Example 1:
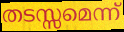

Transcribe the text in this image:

തടസ്സമെന്ന്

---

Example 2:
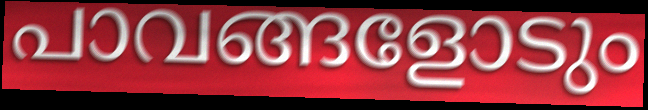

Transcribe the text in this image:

പാവങ്ങളോടും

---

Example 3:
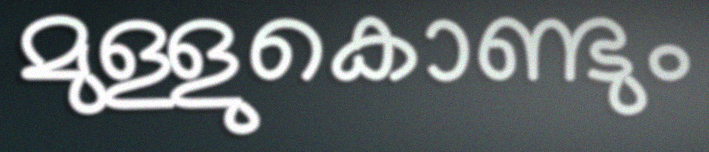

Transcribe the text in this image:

മുള്ളുകൊണ്ടും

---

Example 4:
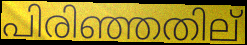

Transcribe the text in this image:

പിരിഞ്ഞതില്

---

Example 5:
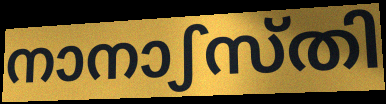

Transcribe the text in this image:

നാനാഽസ്തി